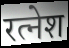
रत्नेश